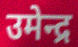
उमेन्द्र